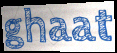
ghaat